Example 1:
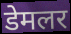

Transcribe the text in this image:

डेमलर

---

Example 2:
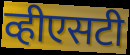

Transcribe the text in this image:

व्हीएसटी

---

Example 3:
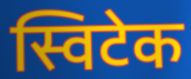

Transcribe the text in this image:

स्विटेक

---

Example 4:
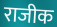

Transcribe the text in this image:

राजीक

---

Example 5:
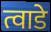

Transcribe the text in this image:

त्वाडे